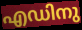
എഡിനു